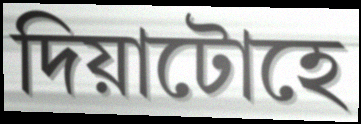
দিয়াটোহে